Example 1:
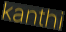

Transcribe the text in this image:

kanthi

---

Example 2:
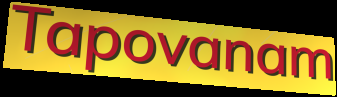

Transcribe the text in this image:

Tapovanam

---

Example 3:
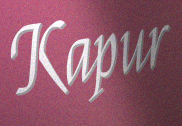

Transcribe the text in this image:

Kapur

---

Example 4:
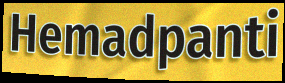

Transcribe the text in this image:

Hemadpanti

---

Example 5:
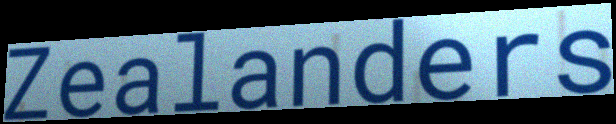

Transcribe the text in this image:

Zealanders